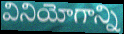
వినియోగాన్ని